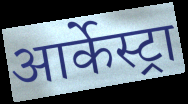
आर्केस्ट्रा